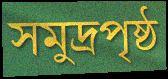
সমুদ্রপৃষ্ঠ